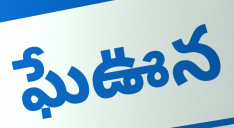
ఘేఊన